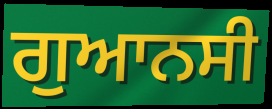
ਗੁਆਨਸੀ